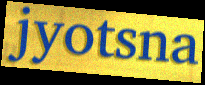
jyotsna